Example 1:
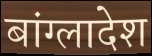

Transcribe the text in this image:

बांग्लादेश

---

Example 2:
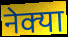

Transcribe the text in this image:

नेक्या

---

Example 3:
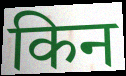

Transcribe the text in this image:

किन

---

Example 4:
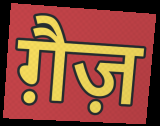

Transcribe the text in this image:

ग़ैज़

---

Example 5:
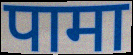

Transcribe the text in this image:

पामा